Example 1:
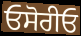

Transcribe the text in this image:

ਓਸੋਰੀਓ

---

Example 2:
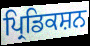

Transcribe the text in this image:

ਪ੍ਰਿਡਿਕਸ਼ਨ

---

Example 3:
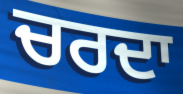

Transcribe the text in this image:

ਚਰਦਾ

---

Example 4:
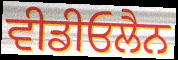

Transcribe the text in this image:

ਵੀਡੀਓਲੈਨ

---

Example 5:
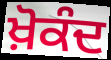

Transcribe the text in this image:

ਖ਼ੋਕੰਦ